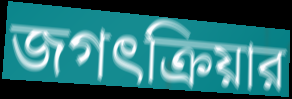
জগৎক্রিয়ার